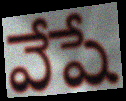
వేషే